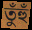
তুঁহুঁ